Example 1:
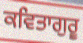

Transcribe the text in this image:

ਕਵਿਤਾਗੁਰੂ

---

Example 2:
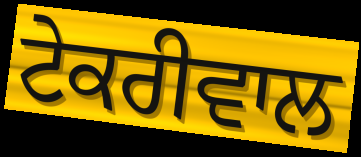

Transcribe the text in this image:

ਟੇਕਰੀਵਾਲ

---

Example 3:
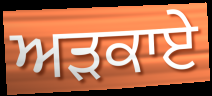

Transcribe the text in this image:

ਅੜਕਾਏ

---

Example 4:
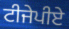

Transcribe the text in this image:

ਟੀਜੇਪੀਏ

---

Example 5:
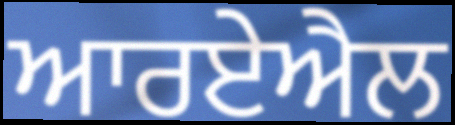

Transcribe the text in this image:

ਆਰਏਐਲ